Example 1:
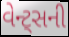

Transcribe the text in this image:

વેન્ટ્સની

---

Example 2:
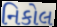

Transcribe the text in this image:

નિકોલ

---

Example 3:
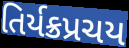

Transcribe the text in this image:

તિર્યક્રપ્રચય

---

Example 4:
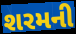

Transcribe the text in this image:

શરમની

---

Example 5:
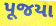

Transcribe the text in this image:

પૂજયા